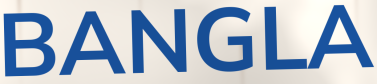
BANGLA